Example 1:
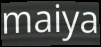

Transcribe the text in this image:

maiya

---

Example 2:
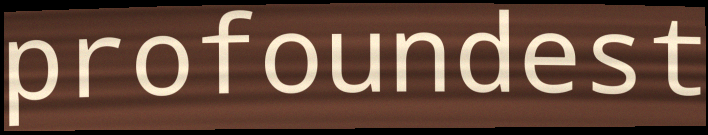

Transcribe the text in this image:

profoundest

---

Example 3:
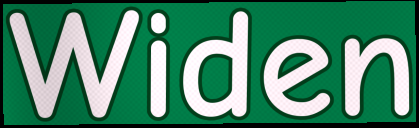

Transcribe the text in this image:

Widen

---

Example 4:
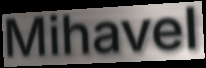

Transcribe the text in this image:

Mihavel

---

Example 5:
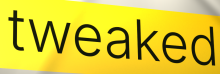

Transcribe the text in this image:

tweaked